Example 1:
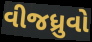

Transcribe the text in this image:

વીજધ્રુવો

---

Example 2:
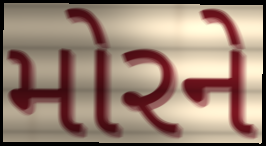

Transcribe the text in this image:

મોરને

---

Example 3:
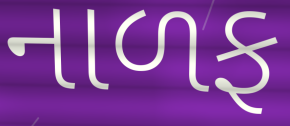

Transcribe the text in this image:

નાળફ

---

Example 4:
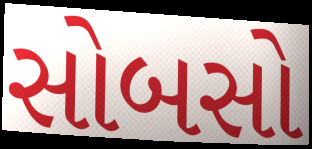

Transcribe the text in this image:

સોબસો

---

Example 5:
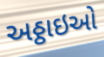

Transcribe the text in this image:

અઠ્ઠાઇઓ